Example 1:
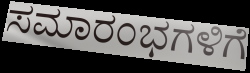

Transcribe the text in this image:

ಸಮಾರಂಭಗಳಿಗೆ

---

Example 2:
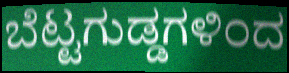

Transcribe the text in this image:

ಬೆಟ್ಟಗುಡ್ಡಗಳಿಂದ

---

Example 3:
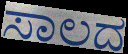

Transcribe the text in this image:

ಸಾಲದ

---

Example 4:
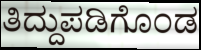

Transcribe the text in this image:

ತಿದ್ದುಪಡಿಗೊಂಡ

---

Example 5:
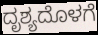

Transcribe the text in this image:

ದೃಶ್ಯದೊಳಗೆ